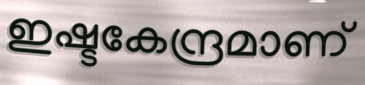
ഇഷ്ടകേന്ദ്രമാണ്